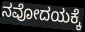
ನವೋದಯಕ್ಕೆ